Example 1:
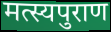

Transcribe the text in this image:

मत्स्यपुराण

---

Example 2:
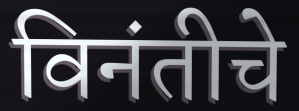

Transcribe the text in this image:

विनंतीचे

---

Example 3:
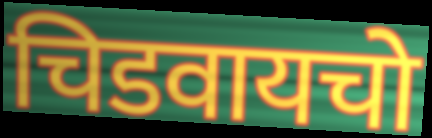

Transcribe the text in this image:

चिडवायचो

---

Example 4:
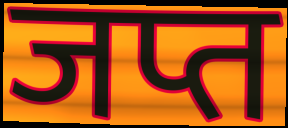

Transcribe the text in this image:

जप्त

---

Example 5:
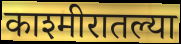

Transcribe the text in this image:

काश्मीरातल्या